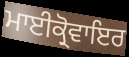
ਮਾਈਕ੍ਰੋਵਾਇਰ